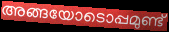
അങ്ങയോടൊപ്പമുണ്ട്